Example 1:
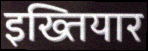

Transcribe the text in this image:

इख्तियार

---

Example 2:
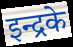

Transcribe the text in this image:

इन्द्रके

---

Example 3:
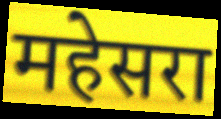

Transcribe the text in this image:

महेसरा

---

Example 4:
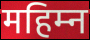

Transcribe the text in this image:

महिम्न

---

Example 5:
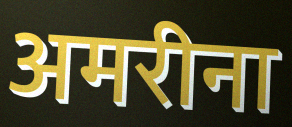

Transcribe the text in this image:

अमरीना